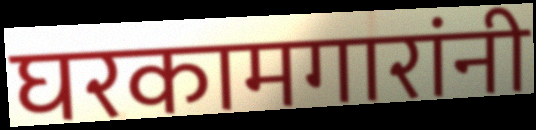
घरकामगारांनी